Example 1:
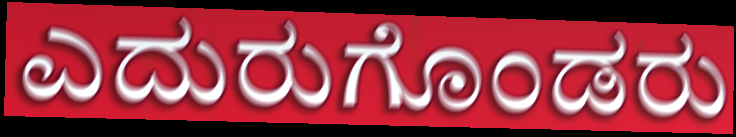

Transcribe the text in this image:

ಎದುರುಗೊಂಡರು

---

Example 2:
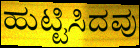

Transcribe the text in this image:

ಹುಟ್ಟಿಸಿದವು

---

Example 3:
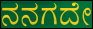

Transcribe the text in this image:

ನನಗದೇ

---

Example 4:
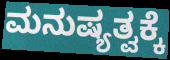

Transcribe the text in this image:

ಮನುಷ್ಯತ್ವಕ್ಕೆ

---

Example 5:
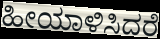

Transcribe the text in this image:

ಹೀಯಾಳಿಸಿದರೆ